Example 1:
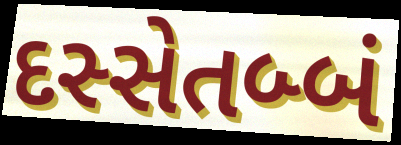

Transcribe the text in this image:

દસ્સેતબ્બં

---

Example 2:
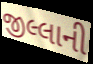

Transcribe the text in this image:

જીલ્લાની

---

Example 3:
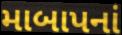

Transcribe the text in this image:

માબાપનાં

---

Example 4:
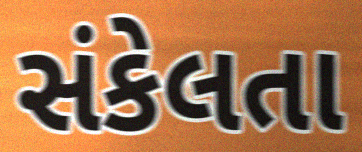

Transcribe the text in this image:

સંકેલતા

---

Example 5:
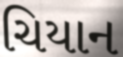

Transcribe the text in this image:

ચિયાન